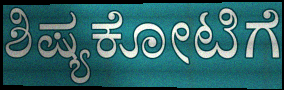
ಶಿಷ್ಯಕೋಟಿಗೆ